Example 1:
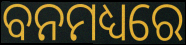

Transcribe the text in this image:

ବନମଧ୍ୟରେ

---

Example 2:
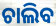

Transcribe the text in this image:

ଚାଲିବ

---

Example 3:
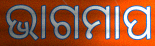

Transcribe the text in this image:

ଭାଗମାପ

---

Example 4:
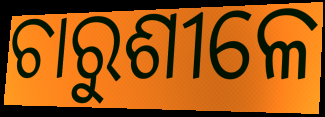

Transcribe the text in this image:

ଚାରୁଶୀଳେ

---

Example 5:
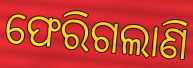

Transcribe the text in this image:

ଫେରିଗଲାଣି